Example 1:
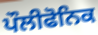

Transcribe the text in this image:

ਪੌਲੀਫੋਨਿਕ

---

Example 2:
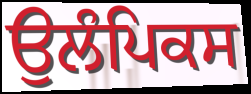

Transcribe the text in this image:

ਉਲੰਪਿਕਸ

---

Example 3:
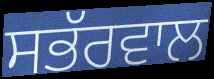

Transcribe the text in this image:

ਸਭੱਰਵਾਲ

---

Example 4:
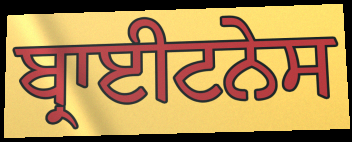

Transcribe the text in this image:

ਬ੍ਰਾਈਟਨੇਸ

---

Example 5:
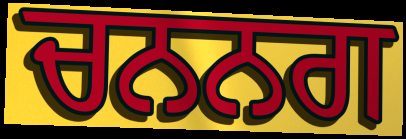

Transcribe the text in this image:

ਚਨਨਗ